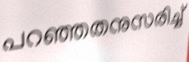
പറഞ്ഞതനുസരിച്ച്